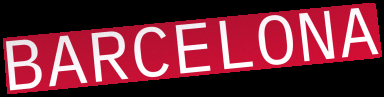
BARCELONA